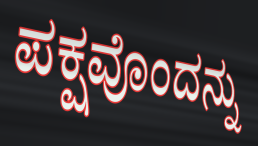
ಪಕ್ಷವೊಂದನ್ನು